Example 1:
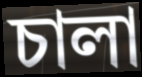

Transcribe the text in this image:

চালা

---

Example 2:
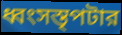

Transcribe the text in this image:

ধ্বংসস্তৃপটার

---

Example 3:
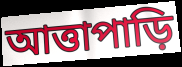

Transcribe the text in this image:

আত্তাপাড়ি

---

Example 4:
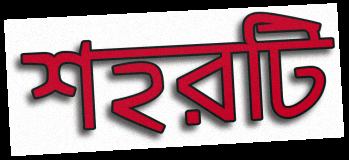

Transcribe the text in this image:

শহরটি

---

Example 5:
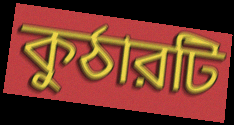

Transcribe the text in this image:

কুঠারটি